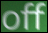
off